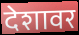
देशावर